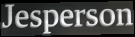
Jesperson